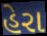
હેરા